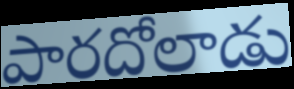
పారదోలాడు